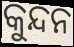
କୁନ୍ଦନ